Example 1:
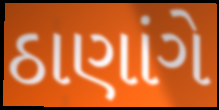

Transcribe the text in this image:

ઠાણાંગે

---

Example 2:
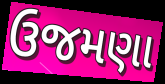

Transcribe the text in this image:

ઉજમણા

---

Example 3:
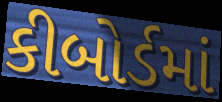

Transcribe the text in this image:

કીબોર્ડમાં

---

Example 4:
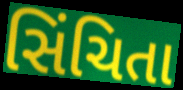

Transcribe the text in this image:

સિંચિતા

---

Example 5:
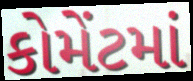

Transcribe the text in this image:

કોમેંટમાં